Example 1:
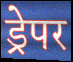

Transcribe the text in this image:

ड्रेपर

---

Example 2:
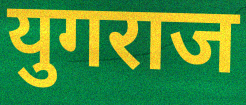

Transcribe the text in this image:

युगराज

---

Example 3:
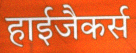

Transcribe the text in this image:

हाईजैकर्स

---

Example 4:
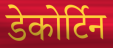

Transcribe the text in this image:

डेकोर्टिन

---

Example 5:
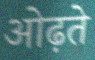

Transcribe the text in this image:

ओढ़ते